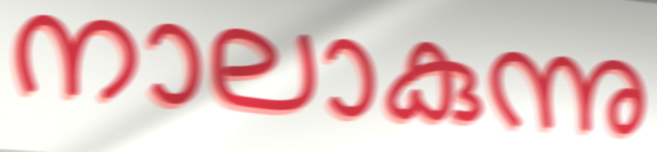
നാലാകുന്നു